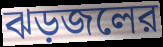
ঝড়জলের